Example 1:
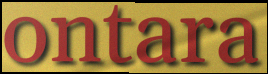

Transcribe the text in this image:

ontara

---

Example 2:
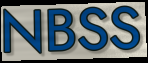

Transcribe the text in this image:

NBSS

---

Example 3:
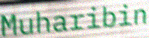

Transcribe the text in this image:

Muharibin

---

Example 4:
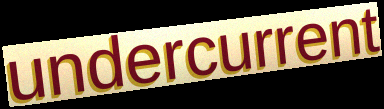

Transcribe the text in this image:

undercurrent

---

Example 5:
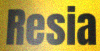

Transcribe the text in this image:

Resia